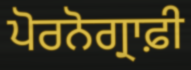
ਪੋਰਨੋਗ੍ਰਾਫ਼ੀ